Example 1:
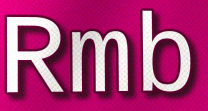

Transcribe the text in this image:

Rmb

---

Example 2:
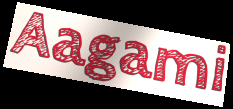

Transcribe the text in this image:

Aagami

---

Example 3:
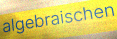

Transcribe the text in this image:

algebraischen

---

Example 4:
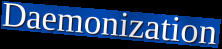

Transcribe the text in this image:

Daemonization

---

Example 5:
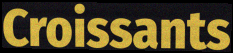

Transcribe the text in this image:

Croissants